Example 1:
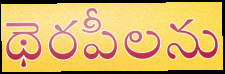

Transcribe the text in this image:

థెరపీలను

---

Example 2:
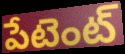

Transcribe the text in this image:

పేటెంట్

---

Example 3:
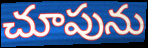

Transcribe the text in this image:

చూపును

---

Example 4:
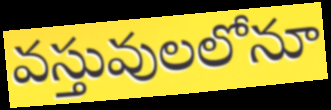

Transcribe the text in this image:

వస్తువులలోనూ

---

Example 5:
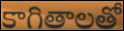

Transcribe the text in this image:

కాగితాలతో